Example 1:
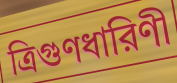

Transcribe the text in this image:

ত্রিগুণধারিণী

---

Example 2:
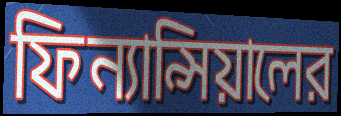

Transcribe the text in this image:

ফিন্যান্সিয়ালের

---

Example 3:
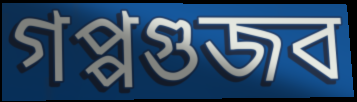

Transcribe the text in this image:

গপ্পগুজব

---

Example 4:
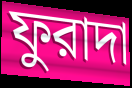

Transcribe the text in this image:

ফুরাদা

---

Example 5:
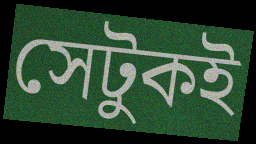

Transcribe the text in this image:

সেটুকই